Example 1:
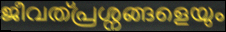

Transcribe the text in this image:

ജീവത്പ്രശ്നങ്ങളെയും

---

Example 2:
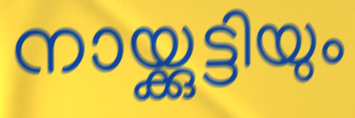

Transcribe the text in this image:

നായ്ക്കുട്ടിയും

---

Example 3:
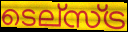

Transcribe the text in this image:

ടെല്സ്ട്ര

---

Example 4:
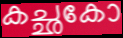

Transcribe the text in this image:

കച്ഛകോ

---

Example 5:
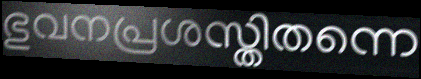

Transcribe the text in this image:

ഭുവനപ്രശസ്തിതന്നെ